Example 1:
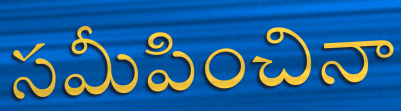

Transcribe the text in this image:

సమీపించినా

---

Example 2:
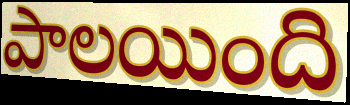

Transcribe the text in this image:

పాలయింది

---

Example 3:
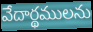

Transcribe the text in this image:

వేదార్థములను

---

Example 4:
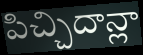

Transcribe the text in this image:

పిచ్చిదాన్లా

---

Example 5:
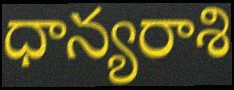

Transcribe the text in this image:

ధాన్యరాశి